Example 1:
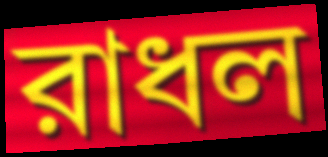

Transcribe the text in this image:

রাধল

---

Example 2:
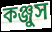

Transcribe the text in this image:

কঞ্জুস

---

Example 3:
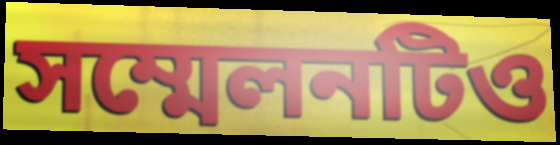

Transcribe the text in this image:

সম্মেলনটিও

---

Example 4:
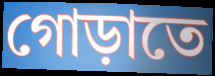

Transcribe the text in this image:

গোড়াতে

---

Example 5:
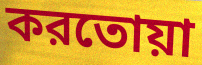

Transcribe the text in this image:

করতোয়া